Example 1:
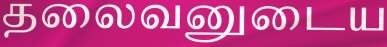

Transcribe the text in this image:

தலைவனுடைய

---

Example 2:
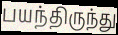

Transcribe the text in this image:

பயந்திருந்து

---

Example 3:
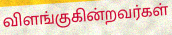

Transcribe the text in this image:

விளங்குகின்றவர்கள்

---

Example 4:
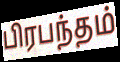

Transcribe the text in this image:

பிரபந்தம்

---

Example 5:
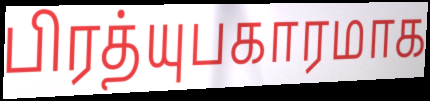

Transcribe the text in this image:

பிரத்யுபகாரமாக